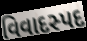
વિવાદસ્પદ